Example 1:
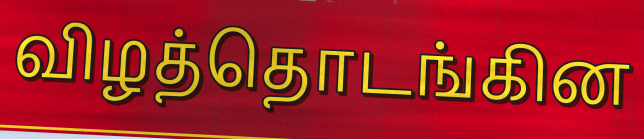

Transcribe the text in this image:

விழத்தொடங்கின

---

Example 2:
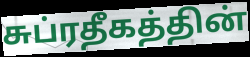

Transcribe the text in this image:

சுப்ரதீகத்தின்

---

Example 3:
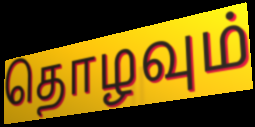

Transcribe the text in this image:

தொழவும்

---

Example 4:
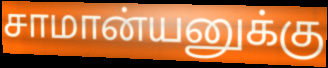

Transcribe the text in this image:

சாமான்யனுக்கு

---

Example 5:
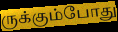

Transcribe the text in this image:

ருக்கும்போது